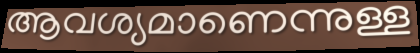
ആവശ്യമാണെന്നുള്ള